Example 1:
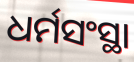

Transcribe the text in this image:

ଧର୍ମସଂସ୍ଥା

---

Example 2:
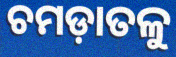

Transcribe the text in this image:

ଚମଡ଼ାତଳୁ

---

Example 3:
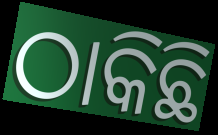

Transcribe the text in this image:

ଠାକିଛି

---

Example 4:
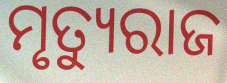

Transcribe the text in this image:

ମୃତ୍ୟୁରାଜ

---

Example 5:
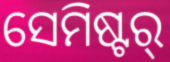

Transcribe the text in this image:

ସେମିଷ୍ଟର୍